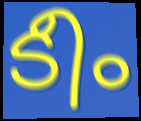
ടീം